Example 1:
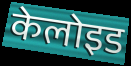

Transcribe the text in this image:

केलोइड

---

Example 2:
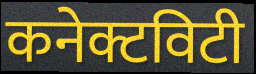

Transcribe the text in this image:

कनेक्टविटी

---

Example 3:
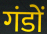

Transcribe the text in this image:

गंडों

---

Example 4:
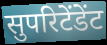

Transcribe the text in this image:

सुपरिटेंडेंट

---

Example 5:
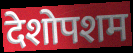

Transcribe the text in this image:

देशोपशम